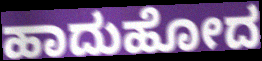
ಹಾದುಹೋದ